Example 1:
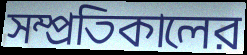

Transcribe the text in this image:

সম্প্রতিকালের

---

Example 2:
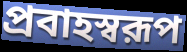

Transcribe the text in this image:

প্রবাহস্বরূপ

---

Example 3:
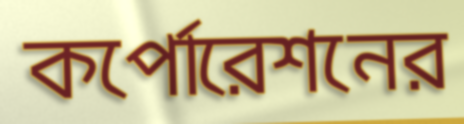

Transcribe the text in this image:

কর্পোরেশনের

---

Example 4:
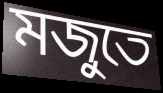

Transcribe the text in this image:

মজুতে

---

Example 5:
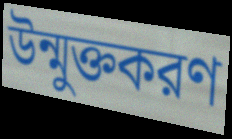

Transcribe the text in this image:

উন্মুক্তকরণ